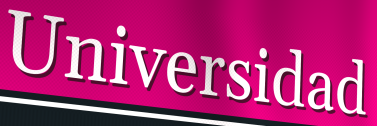
Universidad